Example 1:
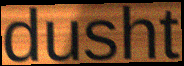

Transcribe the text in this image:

dusht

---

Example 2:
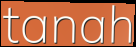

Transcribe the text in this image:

tanah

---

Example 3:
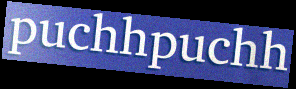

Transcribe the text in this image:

puchhpuchh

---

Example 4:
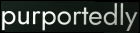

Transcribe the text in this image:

purportedly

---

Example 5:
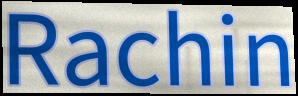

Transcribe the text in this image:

Rachin